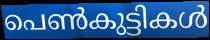
പെൺകുട്ടികൾ